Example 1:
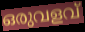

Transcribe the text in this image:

ഒരുവളവ്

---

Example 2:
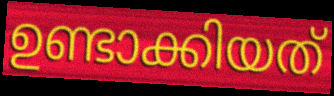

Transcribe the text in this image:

ഉണ്ടാക്കിയത്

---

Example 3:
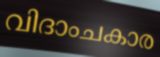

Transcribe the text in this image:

വിദാംചകാര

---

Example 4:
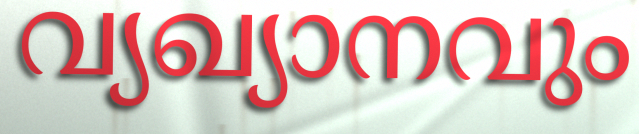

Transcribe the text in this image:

വ്യഖ്യാനവും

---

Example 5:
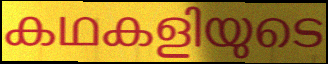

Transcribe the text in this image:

കഥകളിയുടെ